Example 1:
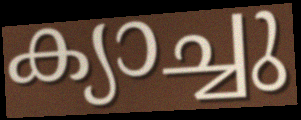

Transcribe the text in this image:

ക്യാച്ചു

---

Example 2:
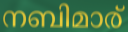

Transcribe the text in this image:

നബിമാര്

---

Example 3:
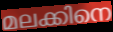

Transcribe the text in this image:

മലക്കിനെ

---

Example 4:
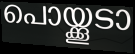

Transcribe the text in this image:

പൊയ്ക്കൂടാ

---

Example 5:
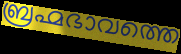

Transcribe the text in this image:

ബ്രഹ്മഭാവത്തെ